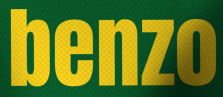
benzo